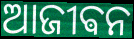
ଆଜୀଵନ